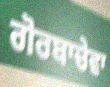
ਗੋਰਬਾਚੇਵਾ